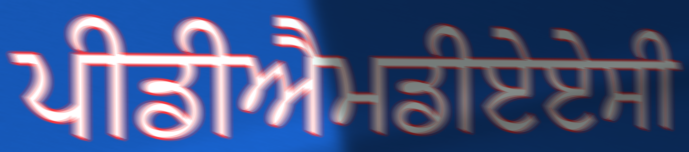
ਪੀਡੀਐਮਡੀਏਏਸੀ